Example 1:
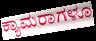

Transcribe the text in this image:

ಕ್ಯಾಮರಾಗಳೂ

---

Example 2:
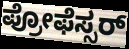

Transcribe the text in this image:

ಪ್ರೋಫೆಸ್ಸರ್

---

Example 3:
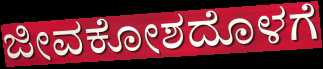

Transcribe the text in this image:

ಜೀವಕೋಶದೊಳಗೆ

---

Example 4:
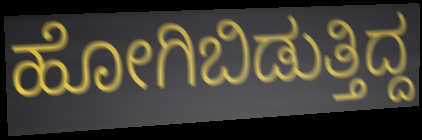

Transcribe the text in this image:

ಹೋಗಿಬಿಡುತ್ತಿದ್ದ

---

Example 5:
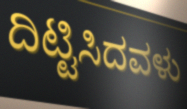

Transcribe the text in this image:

ದಿಟ್ಟಿಸಿದವಳು